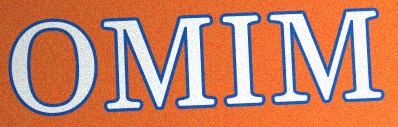
OMIM